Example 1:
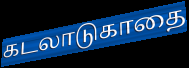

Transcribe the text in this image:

கடலாடுகாதை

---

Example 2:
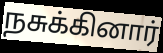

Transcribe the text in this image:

நசுக்கினார்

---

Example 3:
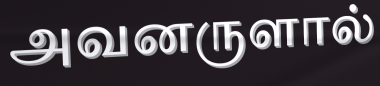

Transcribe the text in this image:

அவனருளால்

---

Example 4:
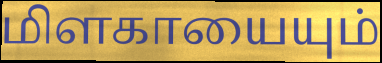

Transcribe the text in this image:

மிளகாயையும்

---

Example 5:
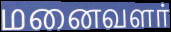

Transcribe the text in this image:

மனைவளர்